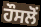
ਹੌਸਲੋਂ